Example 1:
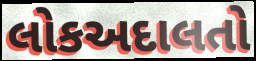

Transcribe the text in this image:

લોકઅદાલતો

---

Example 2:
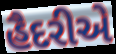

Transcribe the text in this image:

હૈદરીએ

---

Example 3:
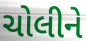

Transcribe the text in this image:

ચોલીને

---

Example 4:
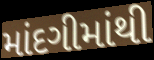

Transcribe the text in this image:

માંદગીમાંથી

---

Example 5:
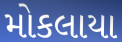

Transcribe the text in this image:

મોકલાયા